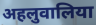
अहलुवालिया